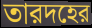
তারদহের